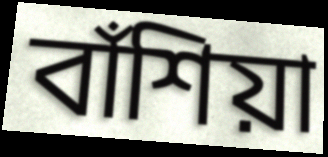
বাঁশিয়া